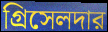
গ্রিসেলদার